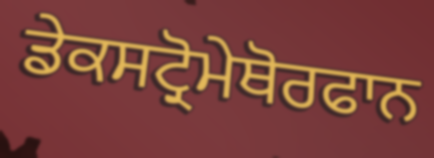
ਡੇਕਸਟ੍ਰੋਮੇਥੋਰਫਾਨ